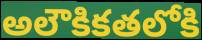
అలౌకికతలోకి